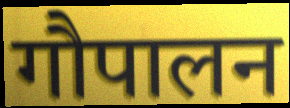
गौपालन